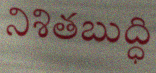
నిశితబుద్ధి